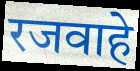
रजवाहे